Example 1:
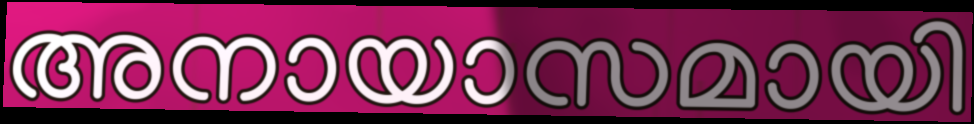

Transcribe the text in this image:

അനായാസമായി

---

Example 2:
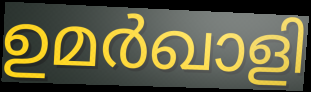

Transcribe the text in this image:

ഉമർഖാളി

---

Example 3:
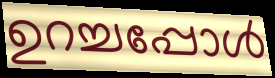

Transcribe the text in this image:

ഉറച്ചപ്പോൾ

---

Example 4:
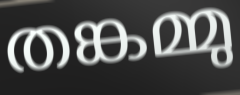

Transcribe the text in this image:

തങ്കമ്മു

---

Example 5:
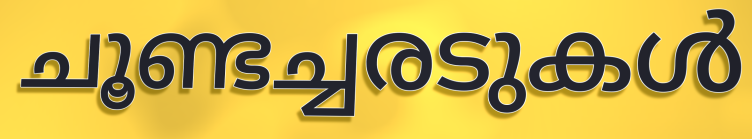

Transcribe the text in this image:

ചൂണ്ടച്ചരടുകൾ